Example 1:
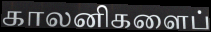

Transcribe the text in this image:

காலனிகளைப்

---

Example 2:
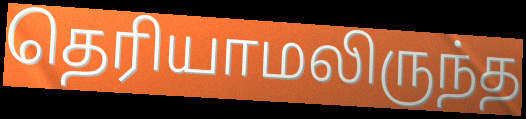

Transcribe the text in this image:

தெரியாமலிருந்த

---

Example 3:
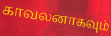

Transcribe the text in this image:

காவலனாகவும்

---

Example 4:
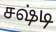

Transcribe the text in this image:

சஷ்டி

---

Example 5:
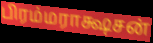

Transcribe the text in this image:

பிரம்மராக்ஷசன்